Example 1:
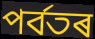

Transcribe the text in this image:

পৰ্বতৰ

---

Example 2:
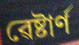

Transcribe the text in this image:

ৱেষ্টাৰ্ণ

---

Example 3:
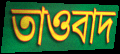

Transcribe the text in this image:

তাওবাদ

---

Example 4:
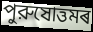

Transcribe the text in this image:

পুৰুষোত্তমৰ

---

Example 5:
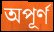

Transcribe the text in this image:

অপূৰ্ণ